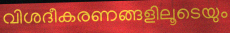
വിശദീകരണങ്ങളിലൂടെയും